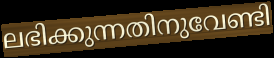
ലഭിക്കുന്നതിനുവേണ്ടി